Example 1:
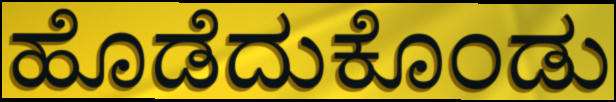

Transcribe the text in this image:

ಹೊಡೆದುಕೊಂಡು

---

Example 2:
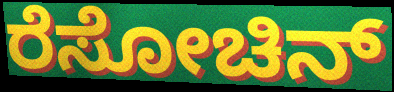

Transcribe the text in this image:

ರೆಸೋಚಿನ್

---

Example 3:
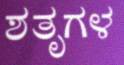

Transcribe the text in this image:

ಶತೃಗಳ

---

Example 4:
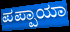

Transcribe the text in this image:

ಪಪ್ಪಾಯಾ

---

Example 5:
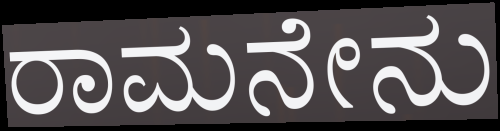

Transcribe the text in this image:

ರಾಮನೇನು